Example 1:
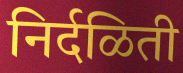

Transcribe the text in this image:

निर्दळिती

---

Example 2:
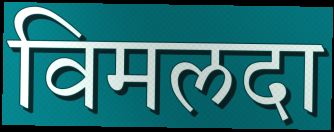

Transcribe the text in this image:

विमलदा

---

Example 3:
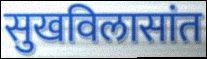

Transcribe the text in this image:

सुखविलासांत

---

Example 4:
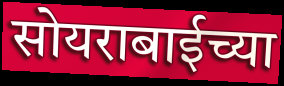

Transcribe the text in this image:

सोयराबाईच्या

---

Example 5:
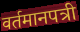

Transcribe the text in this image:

वर्तमानपत्री